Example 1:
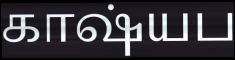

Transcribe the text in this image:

காஷ்யப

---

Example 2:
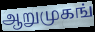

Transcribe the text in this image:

ஆறுமுகங்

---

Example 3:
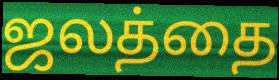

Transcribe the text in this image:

ஜலத்தை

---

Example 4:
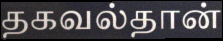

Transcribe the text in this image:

தகவல்தான்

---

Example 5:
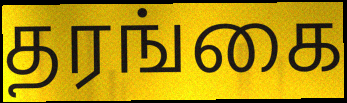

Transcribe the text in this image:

தரங்கை